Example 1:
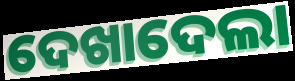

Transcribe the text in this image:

ଦେଖାଦେଲା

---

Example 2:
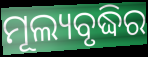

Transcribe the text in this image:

ମୂଲ୍ୟବୃଦ୍ଧିର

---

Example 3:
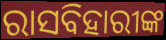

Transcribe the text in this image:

ରାସବିହାରୀଙ୍କ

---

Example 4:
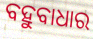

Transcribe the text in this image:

ବହୁବାଧାର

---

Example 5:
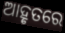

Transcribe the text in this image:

ଆହୃତରେ